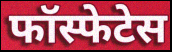
फॉस्फेटेस